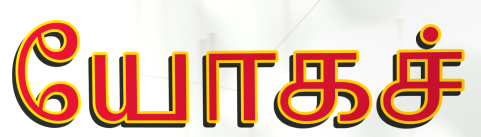
யோகச்